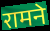
रामने